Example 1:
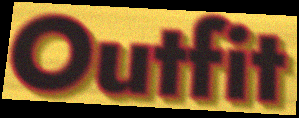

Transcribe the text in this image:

Outfit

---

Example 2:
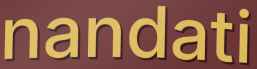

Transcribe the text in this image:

nandati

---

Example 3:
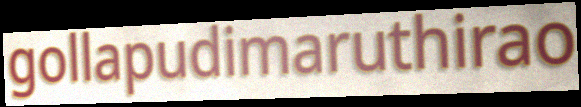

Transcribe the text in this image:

gollapudimaruthirao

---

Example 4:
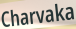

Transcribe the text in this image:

Charvaka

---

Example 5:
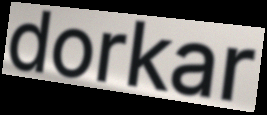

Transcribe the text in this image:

dorkar